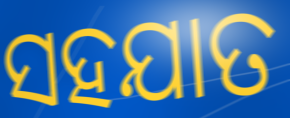
ସହଯାତ